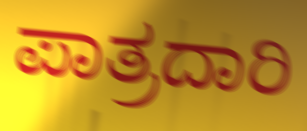
ಪಾತ್ರದಾರಿ